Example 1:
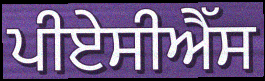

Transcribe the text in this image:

ਪੀਏਸੀਐੱਸ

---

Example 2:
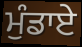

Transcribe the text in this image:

ਮੁੰਡਾਏ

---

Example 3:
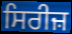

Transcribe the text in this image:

ਸਿਰੀਜ਼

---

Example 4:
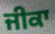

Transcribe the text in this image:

ਜੀਕਾ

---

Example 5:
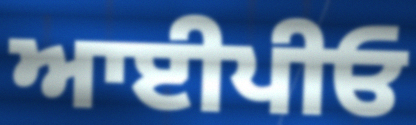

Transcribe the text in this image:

ਆਈਪੀਓ